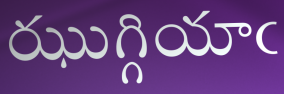
ఝుగ్గియాఁ